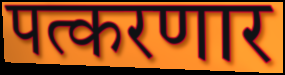
पत्करणार